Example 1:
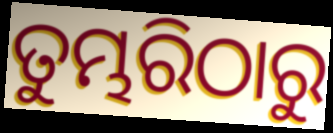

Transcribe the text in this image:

ତୁମ୍ଭରିଠାରୁ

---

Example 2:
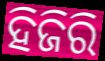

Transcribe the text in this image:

ହିଜିରି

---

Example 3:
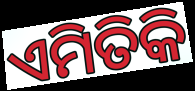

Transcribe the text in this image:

ଏମିତିକି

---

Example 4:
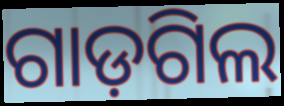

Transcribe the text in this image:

ଗାଡ଼ଗିଲ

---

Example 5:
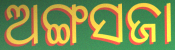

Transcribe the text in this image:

ଅଙ୍ଗସଜା